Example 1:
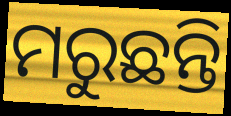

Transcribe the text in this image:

ମରୁଛନ୍ତି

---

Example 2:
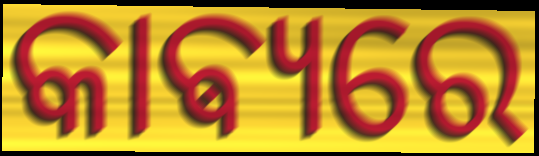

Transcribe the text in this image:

କାଵ୍ଯରେ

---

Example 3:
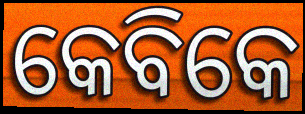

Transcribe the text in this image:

କେବିକେ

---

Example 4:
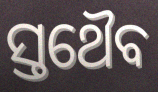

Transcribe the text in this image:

ସ୍ତଥୈବ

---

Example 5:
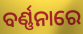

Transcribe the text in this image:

ବର୍ଣ୍ଣନାରେ